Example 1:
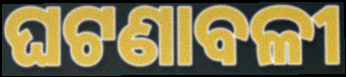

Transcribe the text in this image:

ଘଟଣାବଳୀ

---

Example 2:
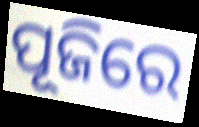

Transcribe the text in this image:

ପୂଜିରେ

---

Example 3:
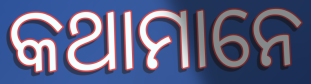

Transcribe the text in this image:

କଥାମାନେ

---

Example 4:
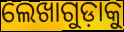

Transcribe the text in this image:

ଲେଖାଗୁଡ଼ାକୁ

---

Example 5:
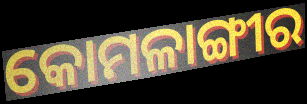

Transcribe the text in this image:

କୋମଳାଙ୍ଗୀର